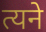
त्यने